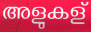
അളുകള്